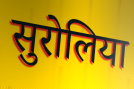
सुरोलिया